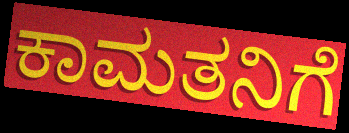
ಕಾಮತನಿಗೆ